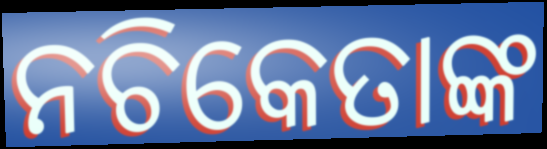
ନଚିକେତାଙ୍କ